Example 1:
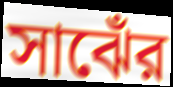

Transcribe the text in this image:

সাঝেঁর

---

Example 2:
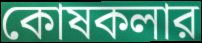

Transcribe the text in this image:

কোষকলার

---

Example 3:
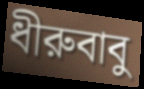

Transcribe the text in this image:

ধীরুবাবু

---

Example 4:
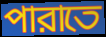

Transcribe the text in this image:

পারাতে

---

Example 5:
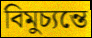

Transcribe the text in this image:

বিমুচ্যন্তে